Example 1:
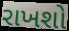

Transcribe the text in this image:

રાખશો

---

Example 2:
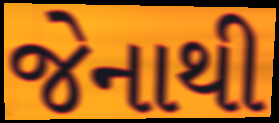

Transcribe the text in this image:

જેનાથી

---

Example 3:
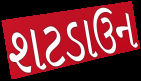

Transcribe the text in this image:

શટડાઉન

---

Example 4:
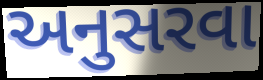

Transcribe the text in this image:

અનુસરવા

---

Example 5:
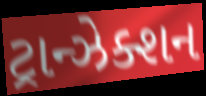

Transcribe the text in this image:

ટ્રાન્ઝેક્શન